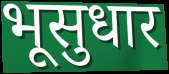
भूसुधार